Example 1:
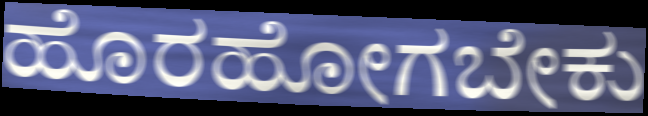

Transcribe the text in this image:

ಹೊರಹೋಗಬೇಕು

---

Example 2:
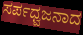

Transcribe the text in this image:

ಸರ್ಪಧ್ವಜನಾದ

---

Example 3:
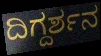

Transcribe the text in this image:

ದಿಗ್ದರ್ಶನ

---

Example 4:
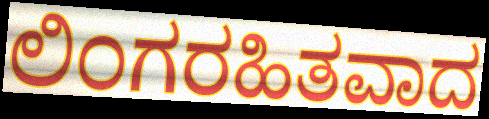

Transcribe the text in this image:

ಲಿಂಗರಹಿತವಾದ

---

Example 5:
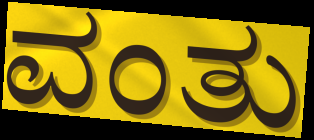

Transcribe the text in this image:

ವಂತು